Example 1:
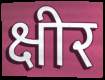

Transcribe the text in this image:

क्षीर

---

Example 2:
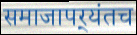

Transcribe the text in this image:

समाजापर्यंतच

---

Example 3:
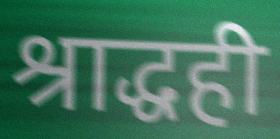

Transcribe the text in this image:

श्राद्धही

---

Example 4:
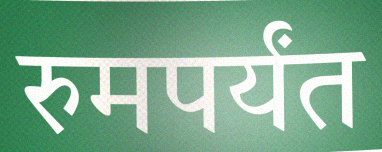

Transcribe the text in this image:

रुमपर्यंत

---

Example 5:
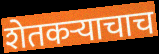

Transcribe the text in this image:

शेतकऱ्याचाच